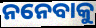
ନନେବାକୁ